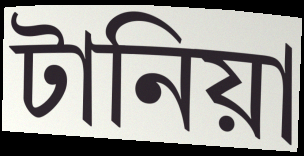
টানিয়া